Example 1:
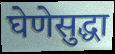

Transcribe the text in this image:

घेणेसुद्धा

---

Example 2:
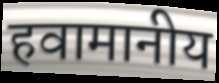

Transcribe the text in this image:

हवामानीय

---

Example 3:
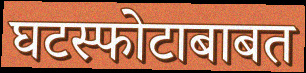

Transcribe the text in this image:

घटस्फोटाबाबत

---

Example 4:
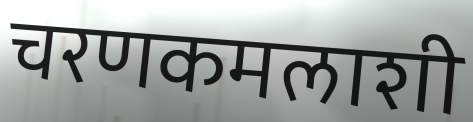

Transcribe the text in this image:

चरणकमलाशी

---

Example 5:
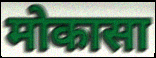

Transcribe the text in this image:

मोकासा